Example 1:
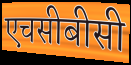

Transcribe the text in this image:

एचसीबीसी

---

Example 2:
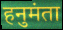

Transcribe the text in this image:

हनुमंता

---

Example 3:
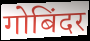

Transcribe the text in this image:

गोबिंदर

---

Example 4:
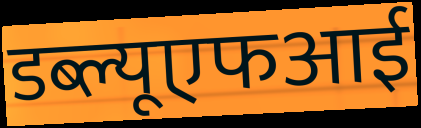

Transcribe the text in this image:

डब्ल्यूएफआई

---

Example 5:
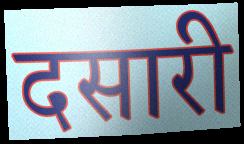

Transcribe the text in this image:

दसारी